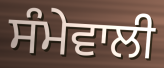
ਸੰਮੇਵਾਲੀ